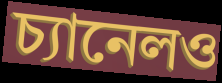
চ্যানেলও